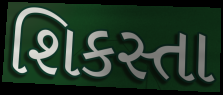
શિકસ્તા